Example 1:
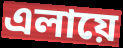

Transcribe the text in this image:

এলায়ে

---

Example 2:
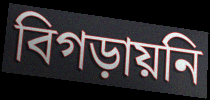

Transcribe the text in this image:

বিগড়ায়নি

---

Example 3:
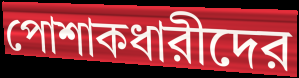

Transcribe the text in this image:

পোশাকধারীদের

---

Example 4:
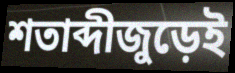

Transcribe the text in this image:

শতাব্দীজুড়েই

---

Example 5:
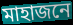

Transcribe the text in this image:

মাহাজনে